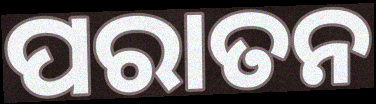
ପରାତନ